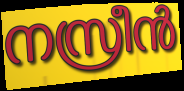
നസ്രീൻ